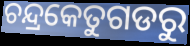
ଚନ୍ଦ୍ରକେତୁଗଡରୁ